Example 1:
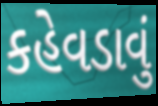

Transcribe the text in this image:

કહેવડાવું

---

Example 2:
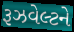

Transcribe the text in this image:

રૂઝવેલ્ટને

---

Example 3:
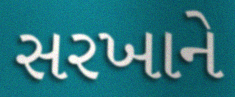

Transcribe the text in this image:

સરખાને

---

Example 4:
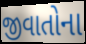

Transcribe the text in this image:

જીવાતોના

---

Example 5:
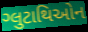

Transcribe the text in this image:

ગ્લુટાથિઓન